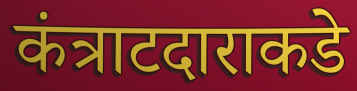
कंत्राटदाराकडे